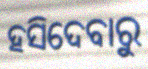
ହସିଦେବାରୁ